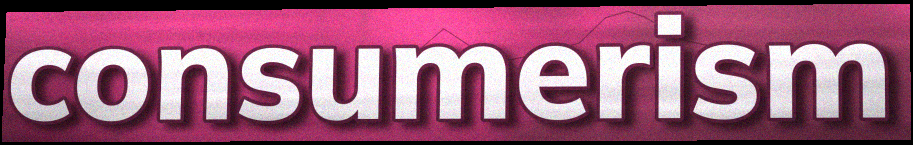
consumerism